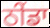
ਠੀਂਡਾ